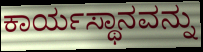
ಕಾರ್ಯಸ್ಥಾನವನ್ನು